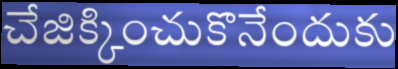
చేజిక్కించుకొనేందుకు